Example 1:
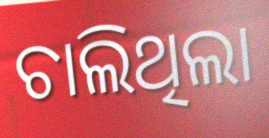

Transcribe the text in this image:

ଚାଲିଥିଲା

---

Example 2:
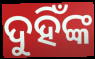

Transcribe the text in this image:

ଦୁହିଁଙ୍କ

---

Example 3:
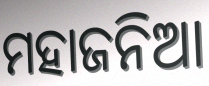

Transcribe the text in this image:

ମହାଜନିଆ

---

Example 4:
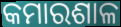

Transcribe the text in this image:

କମାରଶାଳ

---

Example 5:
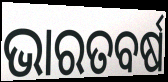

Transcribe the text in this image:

ଭାରତବର୍ଷ